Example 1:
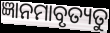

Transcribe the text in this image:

ଜ୍ଞାନମାବୃତ୍ୟତୁ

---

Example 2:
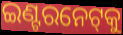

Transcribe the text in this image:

ଇଣ୍ଟରନେଟ୍‌କୁ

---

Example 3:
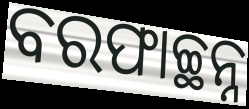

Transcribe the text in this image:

ବରଫାଚ୍ଛନ୍ନ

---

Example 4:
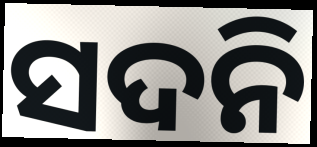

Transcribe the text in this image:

ସଦନି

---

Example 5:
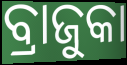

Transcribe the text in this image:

ବ୍ରାଜୁକା